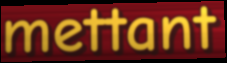
mettant